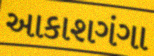
આકાશગંગા